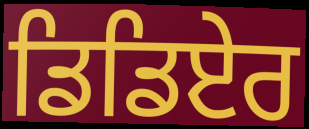
ਡਿਡਿਏਰ